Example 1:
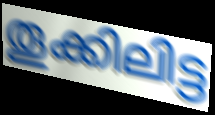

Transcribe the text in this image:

തൂക്കിലിട്ട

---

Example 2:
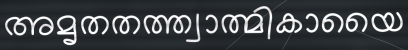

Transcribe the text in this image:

അമൃതതത്ത്വാത്മികായൈ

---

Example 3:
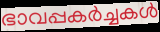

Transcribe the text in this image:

ഭാവപ്പകർച്ചകൾ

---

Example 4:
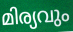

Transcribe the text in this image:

മിര്യവും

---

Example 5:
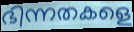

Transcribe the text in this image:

ഭിന്നതകളെ